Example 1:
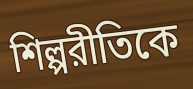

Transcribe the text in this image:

শিল্পরীতিকে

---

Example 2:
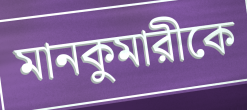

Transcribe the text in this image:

মানকুমারীকে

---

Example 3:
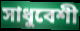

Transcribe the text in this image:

সাধুবেশী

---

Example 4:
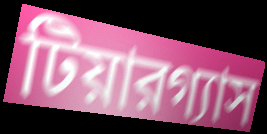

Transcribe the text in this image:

টিয়ারগ্যাস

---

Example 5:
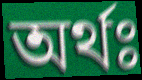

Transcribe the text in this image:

অর্থঃ